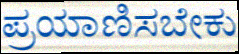
ಪ್ರಯಾಣಿಸಬೇಕು